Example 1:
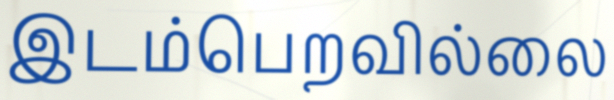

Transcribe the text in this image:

இடம்பெறவில்லை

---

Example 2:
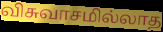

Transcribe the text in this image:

விசுவாசமில்லாத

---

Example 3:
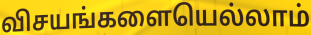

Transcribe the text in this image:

விசயங்களையெல்லாம்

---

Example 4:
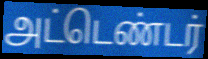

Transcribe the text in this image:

அட்டெண்டர்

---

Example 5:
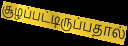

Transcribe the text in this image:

சூழப்பட்டிருப்பதால்